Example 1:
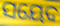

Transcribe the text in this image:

ସୟେଦ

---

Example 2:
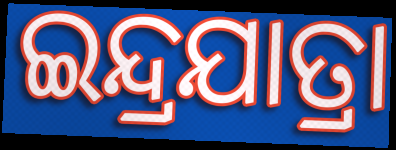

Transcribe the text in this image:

ଇନ୍ଦ୍ରଯାତ୍ରା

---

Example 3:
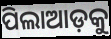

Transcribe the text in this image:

ପିଲାଆଡ଼କୁ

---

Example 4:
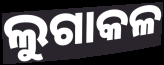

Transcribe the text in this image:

ଲୁଗାକଳ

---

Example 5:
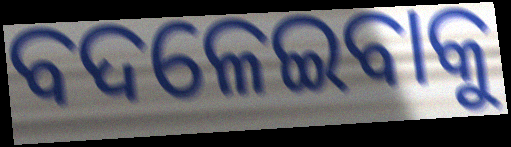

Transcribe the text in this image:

ବଦଳେଇବାକୁ